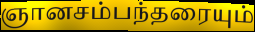
ஞானசம்பந்தரையும்